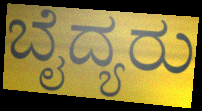
ಬೈದ್ಯರು